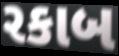
રકાબ